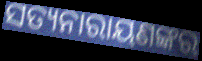
ସତ୍ୟନାରାୟଣଙ୍କର